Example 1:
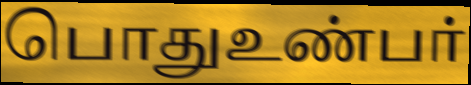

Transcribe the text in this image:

பொதுஉண்பர்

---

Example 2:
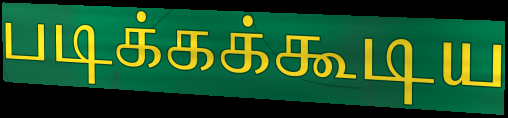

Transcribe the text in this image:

படிக்கக்கூடிய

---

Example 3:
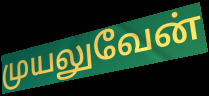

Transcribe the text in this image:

முயலுவேன்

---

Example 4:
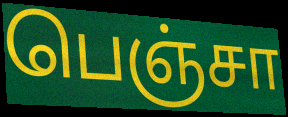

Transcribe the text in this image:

பெஞ்சா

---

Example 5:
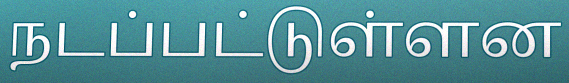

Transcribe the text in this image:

நடப்பட்டுள்ளன